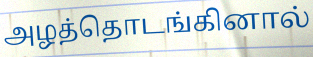
அழத்தொடங்கினால்